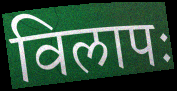
विलापः